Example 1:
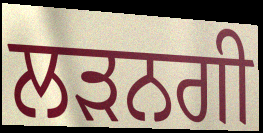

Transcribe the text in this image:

ਲੜਨਗੀ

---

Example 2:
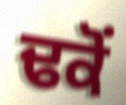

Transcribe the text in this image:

ਢਕੋਂ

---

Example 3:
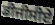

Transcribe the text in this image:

ਡੀਜੀਸੀਏ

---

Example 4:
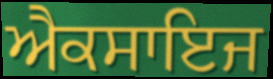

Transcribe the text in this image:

ਐਕਸਾਇਜ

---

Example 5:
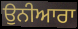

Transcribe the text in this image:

ਉਨੀਆਰਾ